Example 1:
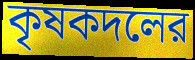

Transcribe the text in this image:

কৃষকদলের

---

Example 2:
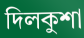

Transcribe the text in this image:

দিলকুশা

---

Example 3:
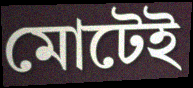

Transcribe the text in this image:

মোটেই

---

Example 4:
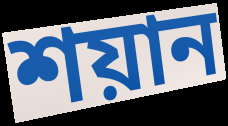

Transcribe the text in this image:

শয়ান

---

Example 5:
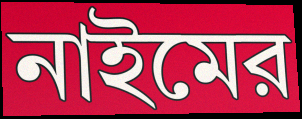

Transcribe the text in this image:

নাইমের